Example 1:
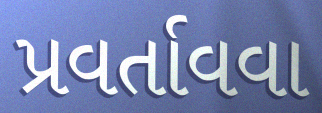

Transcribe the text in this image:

પ્રવર્તાવવા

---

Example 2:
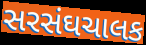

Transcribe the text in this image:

સરસંઘચાલક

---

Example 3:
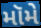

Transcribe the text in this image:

મૉમે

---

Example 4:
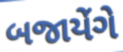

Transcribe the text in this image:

બજાયેંગે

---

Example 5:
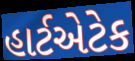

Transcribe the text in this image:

હાર્ટએટેક